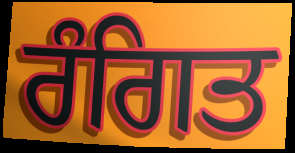
ਰੰਗਿਤ